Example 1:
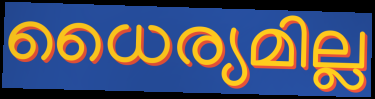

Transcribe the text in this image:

ധൈര്യമില്ല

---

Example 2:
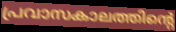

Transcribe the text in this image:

പ്രവാസകാലത്തിന്റെ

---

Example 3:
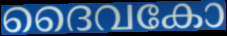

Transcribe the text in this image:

ദൈവകോ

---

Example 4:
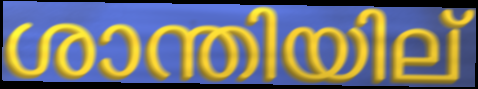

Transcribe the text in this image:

ശാന്തിയില്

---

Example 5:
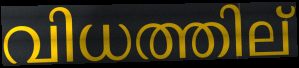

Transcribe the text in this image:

വിധത്തില്